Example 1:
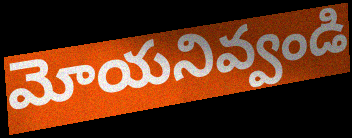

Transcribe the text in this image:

మోయనివ్వండి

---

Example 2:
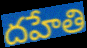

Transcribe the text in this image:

దహేతి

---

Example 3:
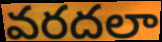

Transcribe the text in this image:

వరదలా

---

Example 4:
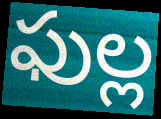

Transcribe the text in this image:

ఫుల్ల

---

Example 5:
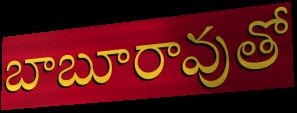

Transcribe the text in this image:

బాబూరావుతో